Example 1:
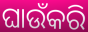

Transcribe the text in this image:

ଘାଉଁକରି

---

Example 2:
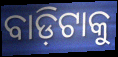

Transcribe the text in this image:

ବାଡ଼ିଟାକୁ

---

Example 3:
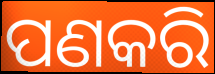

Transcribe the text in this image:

ପଣକରି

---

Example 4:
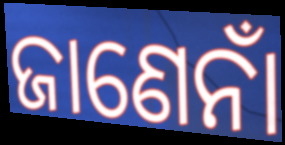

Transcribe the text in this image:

ଜାଣେନାଁ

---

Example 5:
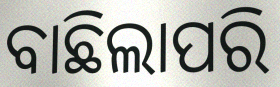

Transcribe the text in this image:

ବାଛିଲାପରି